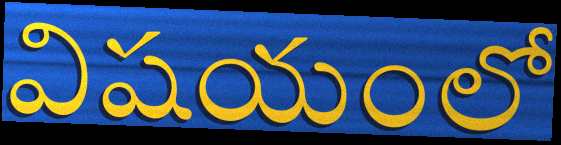
విషయంలో